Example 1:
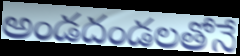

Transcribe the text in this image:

అండదండలతోనే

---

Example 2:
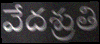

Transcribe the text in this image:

వేదశ్రుతి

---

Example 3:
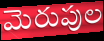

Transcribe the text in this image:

మెరుపుల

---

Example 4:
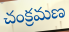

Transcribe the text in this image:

చంక్రమణ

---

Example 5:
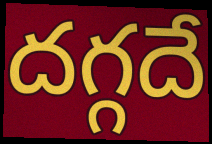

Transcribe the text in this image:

దగ్గదే